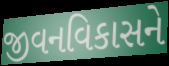
જીવનવિકાસને